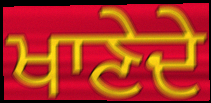
ਖਾਣੇਦੇ